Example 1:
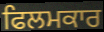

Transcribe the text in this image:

ਫਿਲਮਕਾਰ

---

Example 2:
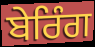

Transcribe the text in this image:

ਬੇਰਿੰਗ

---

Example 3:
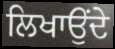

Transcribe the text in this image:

ਲਿਖਾਉਂਦੇ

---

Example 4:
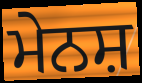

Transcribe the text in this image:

ਮੇਨਸ਼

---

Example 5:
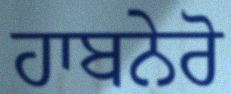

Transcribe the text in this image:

ਹਾਬਨੇਰੋ